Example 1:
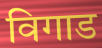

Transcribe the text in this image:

विगाड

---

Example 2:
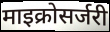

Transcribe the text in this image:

माइक्रोसर्जरी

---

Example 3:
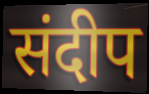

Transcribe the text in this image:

संदीप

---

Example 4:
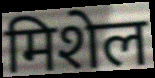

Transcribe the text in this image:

मिशेल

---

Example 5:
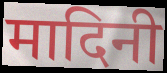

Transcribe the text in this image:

मादिनी